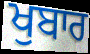
ਖੁਬਾਰ